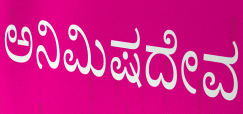
ಅನಿಮಿಷದೇವ